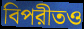
বিপরীতও